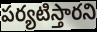
పర్యటిస్తారని